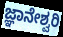
ಜ್ಞಾನೇಶ್ವರಿ